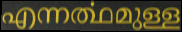
എന്നൎത്ഥമുള്ള